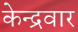
केन्द्रवार